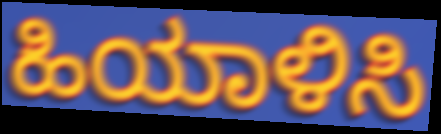
ಹಿಯಾಳಿಸಿ